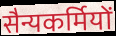
सैन्यकर्मियों